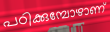
പഠിക്കുമ്പോഴാണ്